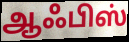
ஆஃபிஸ்